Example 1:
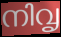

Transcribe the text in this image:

നിവൃ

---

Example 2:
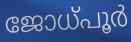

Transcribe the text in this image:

ജോധ്പൂർ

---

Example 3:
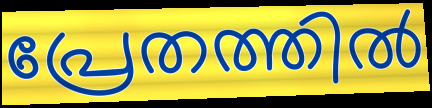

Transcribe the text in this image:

പ്രേതത്തിൽ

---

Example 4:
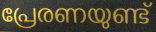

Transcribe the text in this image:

പ്രേരണയുണ്ട്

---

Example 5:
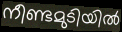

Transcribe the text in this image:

നീണ്ടമുടിയിൽ